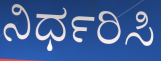
ನಿರ್ಧರಿಸಿ